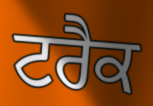
ਟਰੈਕ